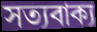
সত্যবাক্য